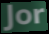
Jor